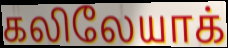
கலிலேயாக்